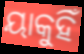
ୟାକୁହିଁ